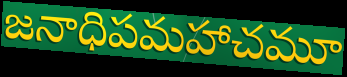
జనాధిపమహాచమూ